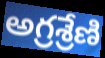
అగ్రశ్రేణి